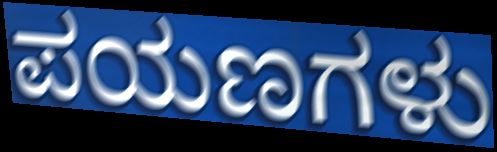
ಪಯಣಗಳು